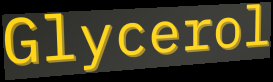
Glycerol